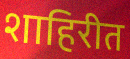
शाहिरीत